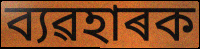
ব্যৱহাৰক